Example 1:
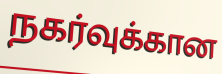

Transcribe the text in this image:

நகர்வுக்கான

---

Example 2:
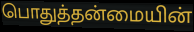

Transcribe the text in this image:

பொதுத்தன்மையின்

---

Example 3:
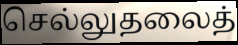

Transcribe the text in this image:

செல்லுதலைத்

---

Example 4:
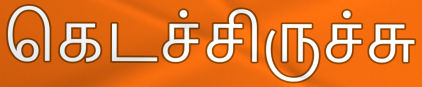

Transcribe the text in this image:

கெடச்சிருச்சு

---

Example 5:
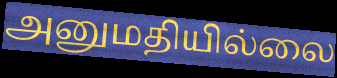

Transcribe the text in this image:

அனுமதியில்லை